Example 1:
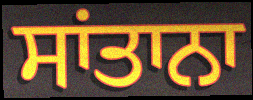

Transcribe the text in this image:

ਸਾਂਤਾਨਾ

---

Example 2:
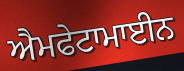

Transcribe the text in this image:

ਐਮਫੇਟਾਮਾਈਨ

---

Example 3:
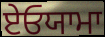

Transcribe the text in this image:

ਏਓਯਾਮਾ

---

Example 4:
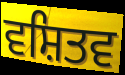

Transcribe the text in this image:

ਵਸ਼ਿਤਵ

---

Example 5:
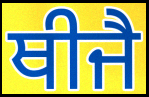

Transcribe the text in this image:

ਥੀਜੈ